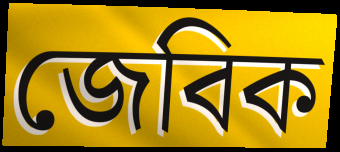
জেবিক